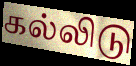
கல்லிடு